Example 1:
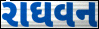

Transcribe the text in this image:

રાઘવન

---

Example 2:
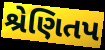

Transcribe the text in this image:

શ્રેણિતપ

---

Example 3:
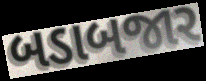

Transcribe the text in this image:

બડાબજાર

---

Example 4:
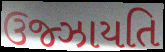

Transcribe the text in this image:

ઉજ્ઝાયતિ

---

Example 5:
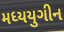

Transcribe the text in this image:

મધ્યયુગીન